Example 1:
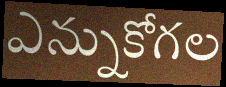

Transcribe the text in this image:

ఎన్నుకోగల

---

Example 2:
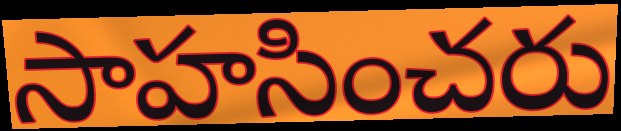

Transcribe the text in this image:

సాహసించరు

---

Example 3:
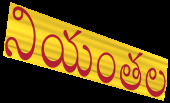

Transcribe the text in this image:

నియంతల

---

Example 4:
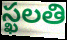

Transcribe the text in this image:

స్ఖలతి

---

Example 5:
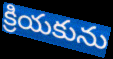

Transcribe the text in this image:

క్రియకును